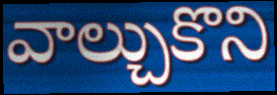
వాల్చుకొని